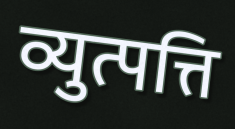
व्युत्पत्ति